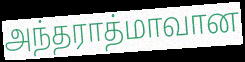
அந்தராத்மாவான